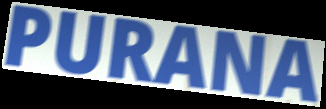
PURANA